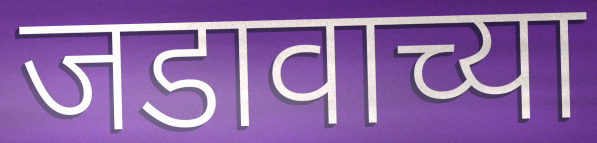
जडावाच्या